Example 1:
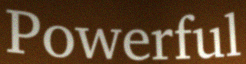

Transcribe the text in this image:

Powerful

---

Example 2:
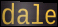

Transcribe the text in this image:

dale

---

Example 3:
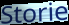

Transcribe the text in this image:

Storie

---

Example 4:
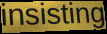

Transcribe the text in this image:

insisting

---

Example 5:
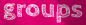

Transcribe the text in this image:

groups